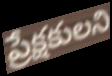
ప్రేక్షకులని